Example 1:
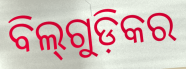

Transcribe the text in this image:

ବିଲ୍‌ଗୁଡ଼ିକର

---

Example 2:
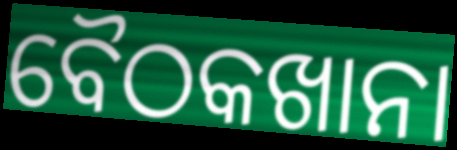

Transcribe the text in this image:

ବୈଠକଖାନା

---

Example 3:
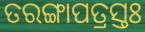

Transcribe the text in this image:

ତରଙ୍ଗାପତ୍ରସ୍ତଃ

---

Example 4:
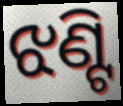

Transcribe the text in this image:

ଝଣ୍ଟି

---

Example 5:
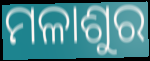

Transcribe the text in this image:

ମଳାଶୁର